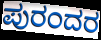
ಪುರಂದರ